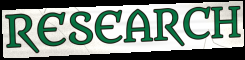
RESEARCH